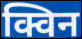
क्विन